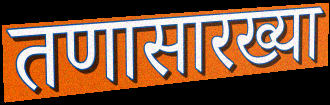
तणासारख्या